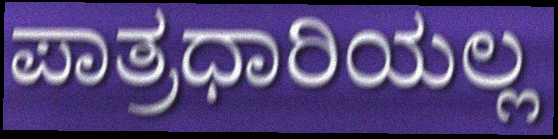
ಪಾತ್ರಧಾರಿಯಲ್ಲ